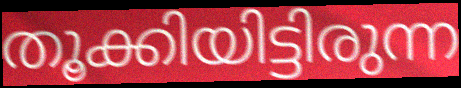
തൂക്കിയിട്ടിരുന്ന